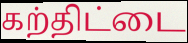
கற்திட்டை